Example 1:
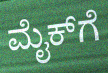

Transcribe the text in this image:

ಮೈಕ್‌ಗೆ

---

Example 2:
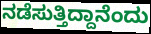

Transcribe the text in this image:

ನಡೆಸುತ್ತಿದ್ದಾನೆಂದು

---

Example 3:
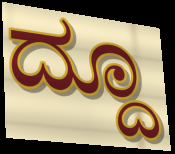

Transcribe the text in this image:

ದ್ದೂ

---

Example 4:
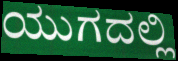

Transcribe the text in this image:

ಯುಗದಲ್ಲಿ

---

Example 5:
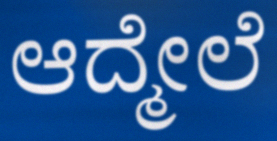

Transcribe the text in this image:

ಆದ್ಮೇಲೆ